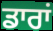
ਡਾਰਾਂ